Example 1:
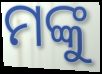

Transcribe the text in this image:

ମଙ୍କୁ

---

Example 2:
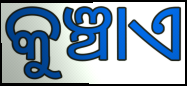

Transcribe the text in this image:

କୁଞ୍ଚାଏ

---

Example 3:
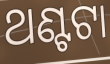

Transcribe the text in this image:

ଥଣ୍ଟଟା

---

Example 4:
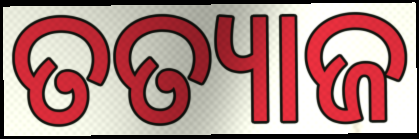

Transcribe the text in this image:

ତତ୍ୟାଜ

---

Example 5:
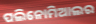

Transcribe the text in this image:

ପଲିନୋମିଆଲର